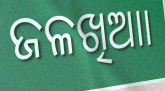
ଜଳଖିଆା